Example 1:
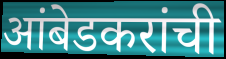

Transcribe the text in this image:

आंबेडकरांची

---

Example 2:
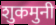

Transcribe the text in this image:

शुकमुनी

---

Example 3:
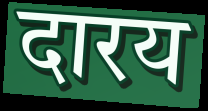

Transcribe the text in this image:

दारय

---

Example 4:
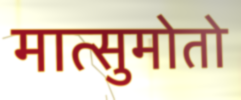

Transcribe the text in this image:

मात्सुमोतो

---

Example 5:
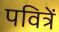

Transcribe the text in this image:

पवित्रें